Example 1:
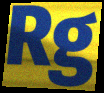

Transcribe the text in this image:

Rg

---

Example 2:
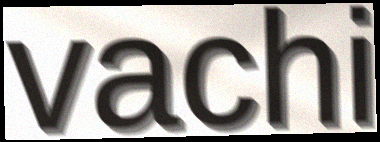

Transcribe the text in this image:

vachi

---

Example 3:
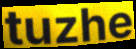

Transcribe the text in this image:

tuzhe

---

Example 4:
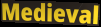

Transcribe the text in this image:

Medieval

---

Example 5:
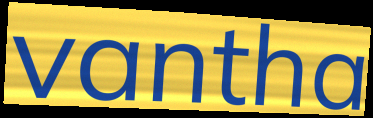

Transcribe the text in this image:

vantha